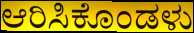
ಆರಿಸಿಕೊಂಡಳು